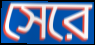
সেরে